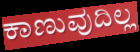
ಕಾಣುವುದಿಲ್ಲ